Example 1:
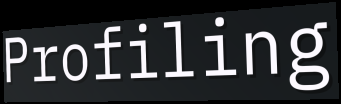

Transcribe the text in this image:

Profiling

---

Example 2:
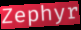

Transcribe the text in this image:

Zephyr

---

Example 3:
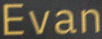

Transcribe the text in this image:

Evan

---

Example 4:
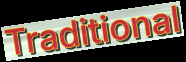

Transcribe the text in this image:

Traditional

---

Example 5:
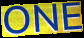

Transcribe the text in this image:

ONE